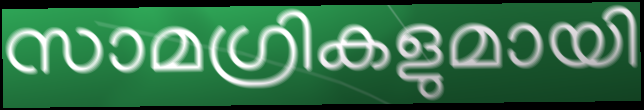
സാമഗ്രികളുമായി